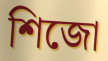
শিজো